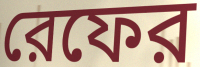
রেফের